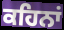
ਕਹਿਨਾਂ